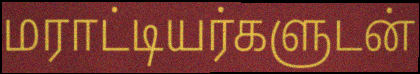
மராட்டியர்களுடன்